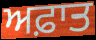
ਅਫ਼ਾਤ